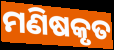
ମଣିଷକୃତ